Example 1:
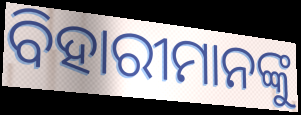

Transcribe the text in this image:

ବିହାରୀମାନଙ୍କୁ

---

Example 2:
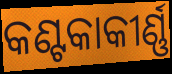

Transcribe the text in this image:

କଣ୍ଟକାକୀର୍ଣ୍ଣ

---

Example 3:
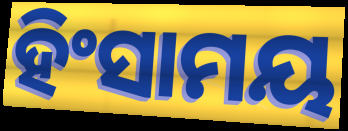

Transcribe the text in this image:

ହିଂସାମୟ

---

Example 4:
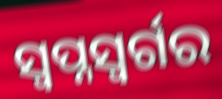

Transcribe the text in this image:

ସ୍ୱପ୍ନସ୍ୱର୍ଗର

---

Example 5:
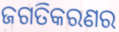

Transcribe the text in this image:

ଜଗତିକରଣର